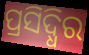
ପ୍ରସିଦ୍ଧିର